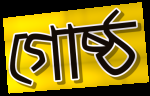
গোষ্ঠ